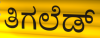
ತಿಗಲೆಡ್